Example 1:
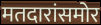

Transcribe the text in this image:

मतदारांसमोर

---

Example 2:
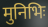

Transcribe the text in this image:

मुनिभिः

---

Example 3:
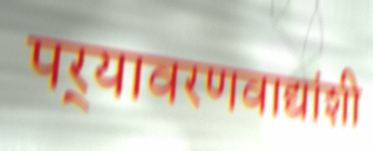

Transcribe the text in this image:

पर्यावरणवाद्यांशी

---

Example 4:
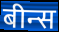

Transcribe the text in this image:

बीन्स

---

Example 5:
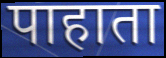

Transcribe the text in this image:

पाहाता